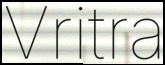
Vritra